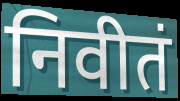
निवीतं